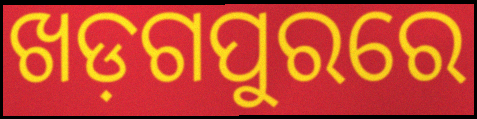
ଖଡ଼ଗପୁରରେ